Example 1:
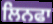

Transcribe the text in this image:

ਲਿਨਫਾ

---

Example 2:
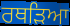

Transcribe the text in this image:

ਰਥੜਿਆ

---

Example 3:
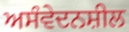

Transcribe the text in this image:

ਅਸੰਵੇਦਨਸ਼ੀਲ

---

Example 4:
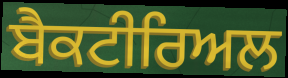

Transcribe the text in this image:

ਬੈਕਟੀਰਿਅਲ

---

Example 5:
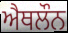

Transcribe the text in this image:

ਐਥਲੌਨ